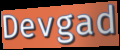
Devgad